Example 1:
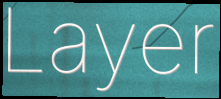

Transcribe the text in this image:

Layer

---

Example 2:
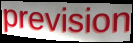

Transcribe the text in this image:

prevision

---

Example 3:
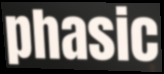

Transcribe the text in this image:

phasic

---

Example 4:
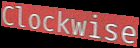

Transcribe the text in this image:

Clockwise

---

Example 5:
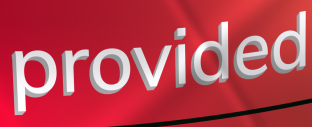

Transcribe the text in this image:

provided